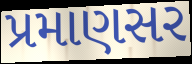
પ્રમાણસર